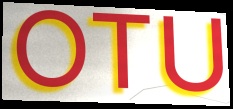
OTU